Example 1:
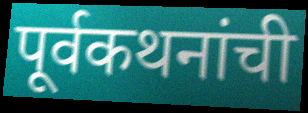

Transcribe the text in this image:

पूर्वकथनांची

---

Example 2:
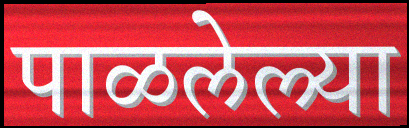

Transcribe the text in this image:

पाळलेल्या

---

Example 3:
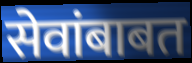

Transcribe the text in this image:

सेवांबाबत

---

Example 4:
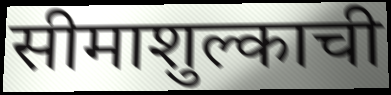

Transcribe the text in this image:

सीमाशुल्काची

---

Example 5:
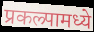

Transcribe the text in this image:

प्रकल्पामध्ये